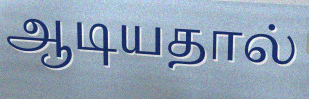
ஆடியதால்